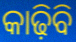
କାଢ଼ିବି